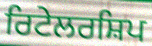
ਰਿਟੇਲਰਸ਼ਿਪ